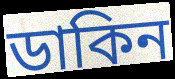
ডাকিন